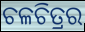
ଚଳଚିତ୍ରର